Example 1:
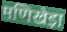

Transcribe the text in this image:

मणिखेड़ा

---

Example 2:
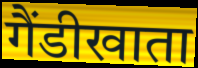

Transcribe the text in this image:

गैंडीखाता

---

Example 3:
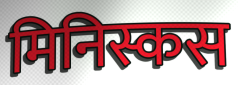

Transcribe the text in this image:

मिनिस्कस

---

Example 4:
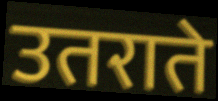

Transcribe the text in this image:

उतराते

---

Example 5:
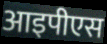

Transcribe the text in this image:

आइपीएस